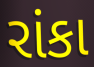
રાંકા